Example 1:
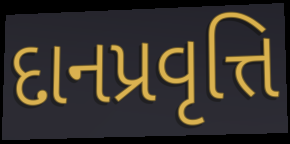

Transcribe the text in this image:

દાનપ્રવૃત્તિ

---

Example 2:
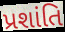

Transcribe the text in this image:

પ્રશાંતિ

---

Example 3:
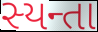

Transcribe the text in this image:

સ્યન્તા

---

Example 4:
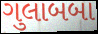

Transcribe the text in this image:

ગુલાબબા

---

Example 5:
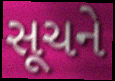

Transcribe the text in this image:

સૂચને